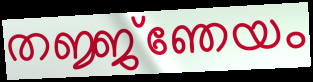
തജ്ജ്ഞേയം